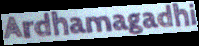
Ardhamagadhi